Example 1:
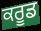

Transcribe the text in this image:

ਕਰੂਡ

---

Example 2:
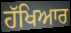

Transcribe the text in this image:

ਹੱਖਿਆਰ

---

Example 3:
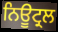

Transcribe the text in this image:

ਨਿਊਟ੍ਰਲ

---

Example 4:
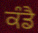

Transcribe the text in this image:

ਕੰਡੈ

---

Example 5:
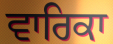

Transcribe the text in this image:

ਵਾਰਿਕਾ